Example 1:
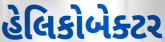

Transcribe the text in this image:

હેલિકોબેક્ટર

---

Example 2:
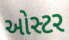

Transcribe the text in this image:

ઓસ્ટર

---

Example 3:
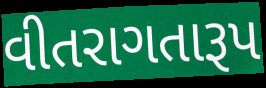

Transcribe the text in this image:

વીતરાગતારૂપ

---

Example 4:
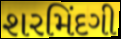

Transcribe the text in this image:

શરમિંદગી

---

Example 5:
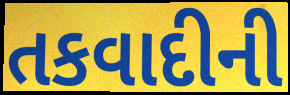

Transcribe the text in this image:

તકવાદીની